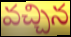
వచ్చిన